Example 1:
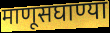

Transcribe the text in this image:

माणूसघाण्या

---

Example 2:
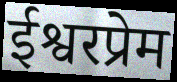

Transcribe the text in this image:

ईश्वरप्रेम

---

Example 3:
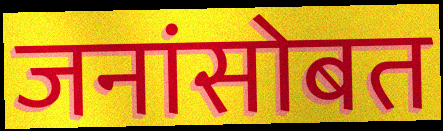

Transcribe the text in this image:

जनांसोबत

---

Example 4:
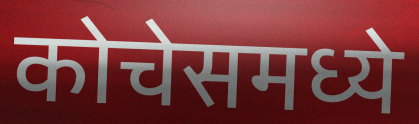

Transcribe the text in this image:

कोचेसमध्ये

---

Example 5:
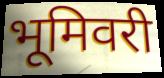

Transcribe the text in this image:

भूमिवरी